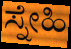
ಸ್ನೇಹಿ